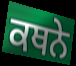
ਕਥਨੇ